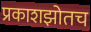
प्रकाशझोतच